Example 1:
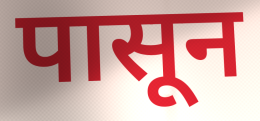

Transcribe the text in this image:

पासून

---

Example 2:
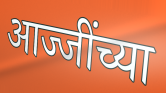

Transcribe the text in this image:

आज्जींच्या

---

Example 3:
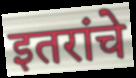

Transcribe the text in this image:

इतरांचे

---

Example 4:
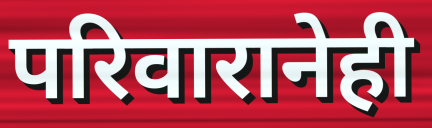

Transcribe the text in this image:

परिवारानेही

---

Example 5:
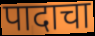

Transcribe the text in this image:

पादाचा